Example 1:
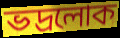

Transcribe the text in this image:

ভদ্রলোক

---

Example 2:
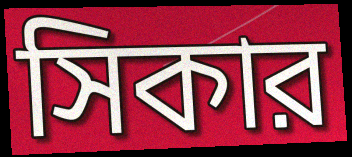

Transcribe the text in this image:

সিকার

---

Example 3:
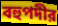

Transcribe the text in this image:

বহুপদীর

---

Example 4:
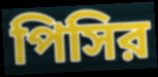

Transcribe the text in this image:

পিসির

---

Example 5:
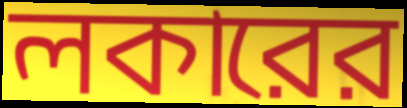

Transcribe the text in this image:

লকারের